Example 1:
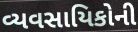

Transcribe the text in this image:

વ્યવસાયિકોની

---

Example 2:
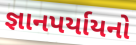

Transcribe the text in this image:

જ્ઞાનપર્યાયનો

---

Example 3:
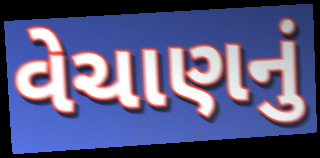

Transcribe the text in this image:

વેચાણનું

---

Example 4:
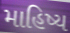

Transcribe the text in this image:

માહિષ્ય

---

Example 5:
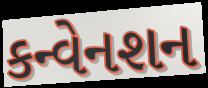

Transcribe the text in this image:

કન્વેનશન